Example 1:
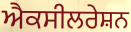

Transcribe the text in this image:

ਐਕਸੀਲਰੇਸ਼ਨ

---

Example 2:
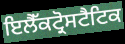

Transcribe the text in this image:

ਇਲੈੱਕਟ੍ਰੋਸਟੈਟਿਕ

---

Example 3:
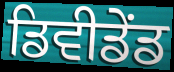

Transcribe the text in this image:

ਡਿਵੀਡੇਂਡ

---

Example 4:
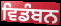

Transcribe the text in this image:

ਵਿਡੰਬਨ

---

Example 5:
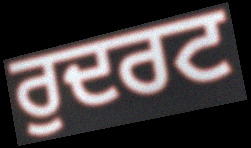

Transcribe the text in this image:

ਰੁਦਰਟ